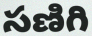
సణిగి